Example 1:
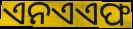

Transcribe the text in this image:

ଏନଏଏଫ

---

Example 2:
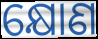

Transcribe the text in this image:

କ୍ଷୋଣ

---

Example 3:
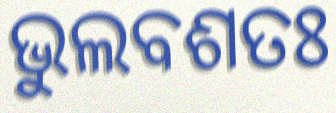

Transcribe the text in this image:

ଭୁଲବଶତଃ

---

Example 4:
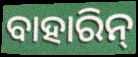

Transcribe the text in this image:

ବାହାରିନ୍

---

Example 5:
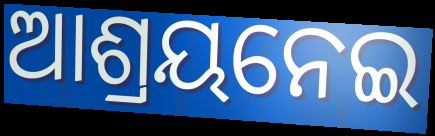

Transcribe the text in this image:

ଆଶ୍ରୟନେଇ